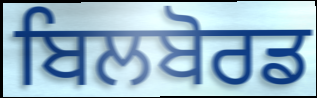
ਬਿਲਬੋਰਡ